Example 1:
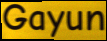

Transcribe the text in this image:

Gayun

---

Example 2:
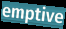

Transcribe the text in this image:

emptive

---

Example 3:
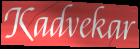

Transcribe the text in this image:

Kadvekar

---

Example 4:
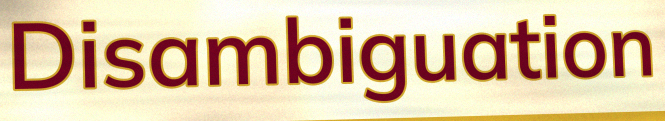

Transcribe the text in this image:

Disambiguation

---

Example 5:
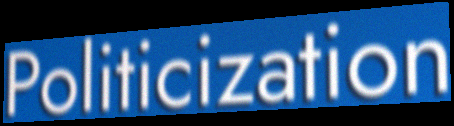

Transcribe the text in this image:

Politicization